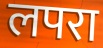
लपरा